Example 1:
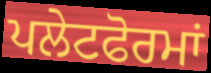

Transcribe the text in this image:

ਪਲੇਟਫੋਰਮਾਂ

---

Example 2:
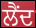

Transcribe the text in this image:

ਲੈਂਦ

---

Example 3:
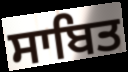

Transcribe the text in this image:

ਸਾਬਿਤ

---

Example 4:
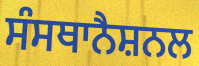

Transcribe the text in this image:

ਸੰਸਥਾਨੈਸ਼ਨਲ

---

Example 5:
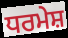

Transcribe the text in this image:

ਧਰਮੇਸ਼